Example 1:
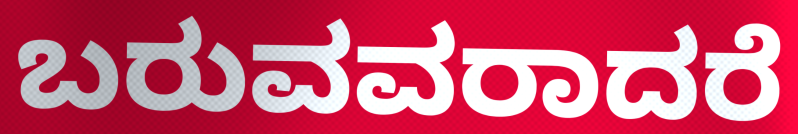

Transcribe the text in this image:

ಬರುವವರಾದರೆ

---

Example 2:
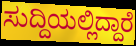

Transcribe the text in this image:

ಸುದ್ದಿಯಲ್ಲಿದ್ದಾರೆ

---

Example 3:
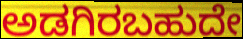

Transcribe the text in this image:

ಅಡಗಿರಬಹುದೇ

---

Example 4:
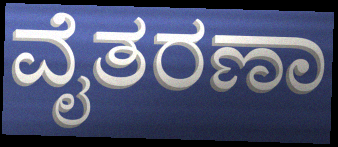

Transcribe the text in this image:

ವೈತರಣಾ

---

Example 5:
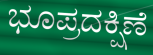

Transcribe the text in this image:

ಭೂಪ್ರದಕ್ಷಿಣೆ